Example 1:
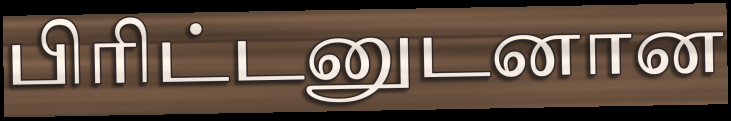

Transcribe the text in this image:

பிரிட்டனுடனான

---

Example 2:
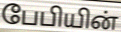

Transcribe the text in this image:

பேபியின்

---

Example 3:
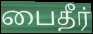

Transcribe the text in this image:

பைதீர்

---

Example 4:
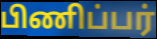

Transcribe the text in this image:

பிணிப்பர்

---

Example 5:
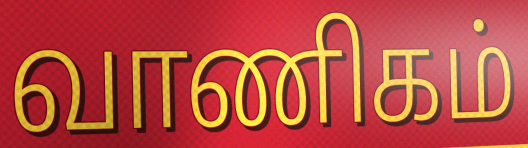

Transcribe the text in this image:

வாணிகம்